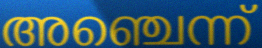
അഞ്ചെന്ന്